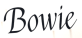
Bowie